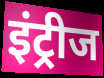
इंट्रीज